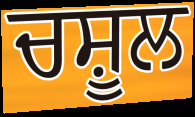
ਚਸ਼ੂਲ